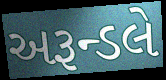
અરૂન્ડલે